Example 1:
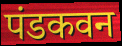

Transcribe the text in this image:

पंडकवन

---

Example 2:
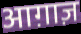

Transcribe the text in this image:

आग़ाज़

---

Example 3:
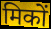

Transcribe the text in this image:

मिकों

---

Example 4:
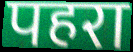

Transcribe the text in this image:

पहरा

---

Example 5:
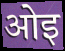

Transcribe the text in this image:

ओइ